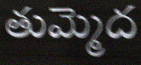
తుమ్మెద